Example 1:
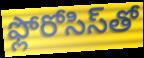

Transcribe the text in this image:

ఫ్లోరోసిస్‌తో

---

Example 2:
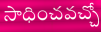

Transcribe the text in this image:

సాధించవచ్చో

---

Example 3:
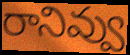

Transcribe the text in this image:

రానివ్వు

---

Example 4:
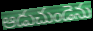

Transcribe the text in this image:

ఆడుచుండెను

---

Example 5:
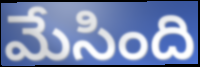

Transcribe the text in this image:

మేసింది